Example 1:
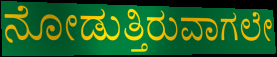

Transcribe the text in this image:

ನೋಡುತ್ತಿರುವಾಗಲೇ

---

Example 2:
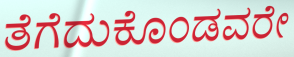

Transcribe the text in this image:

ತೆಗೆದುಕೊಂಡವರೇ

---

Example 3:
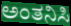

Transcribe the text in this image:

ಅಂತನಿಸಿ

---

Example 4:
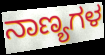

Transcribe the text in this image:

ನಾಣ್ಯಗಳ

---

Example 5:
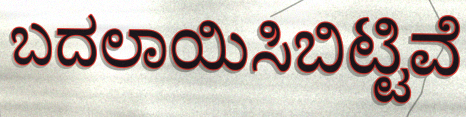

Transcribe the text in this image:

ಬದಲಾಯಿಸಿಬಿಟ್ಟಿವೆ